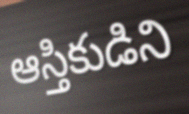
ఆస్తికుడిని